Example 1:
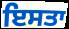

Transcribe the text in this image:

ਇਸਤਾ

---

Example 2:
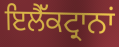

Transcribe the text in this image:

ਇਲੈੱਕਟ੍ਰਾਨਾਂ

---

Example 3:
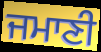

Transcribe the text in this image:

ਜਮਾਣੀ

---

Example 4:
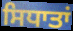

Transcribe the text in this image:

ਸਿਧਾਤਾਂ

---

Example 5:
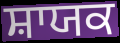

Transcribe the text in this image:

ਸ਼ਾਯਕ